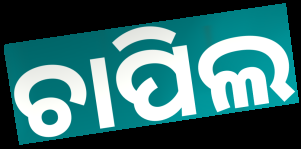
ଚାପିଲ